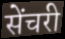
सेंचरी